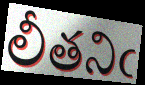
లీతనిఁ